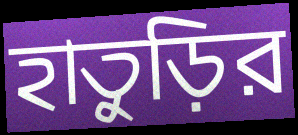
হাতুড়ির